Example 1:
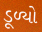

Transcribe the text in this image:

ડૂળ્યો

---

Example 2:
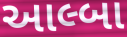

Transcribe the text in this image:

આલ્બા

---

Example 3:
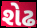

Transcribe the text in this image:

શેઢ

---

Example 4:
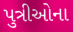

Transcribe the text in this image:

પુત્રીઓના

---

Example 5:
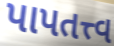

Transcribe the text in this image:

પાપતત્ત્વ